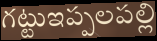
గట్టుఇప్పలపల్లి